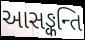
આસઙ્કન્તિ